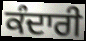
ਕੰਦਾਰੀ